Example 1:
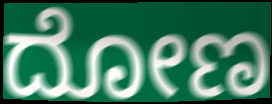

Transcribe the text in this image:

ದೋಣ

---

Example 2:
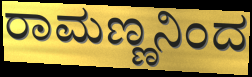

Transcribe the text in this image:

ರಾಮಣ್ಣನಿಂದ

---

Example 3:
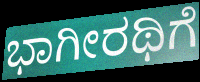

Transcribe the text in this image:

ಭಾಗೀರಥಿಗೆ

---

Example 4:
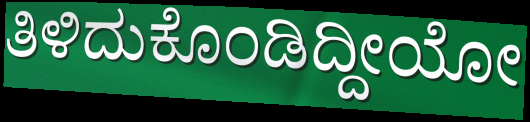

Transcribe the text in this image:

ತಿಳಿದುಕೊಂಡಿದ್ದೀಯೋ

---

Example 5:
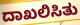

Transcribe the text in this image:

ದಾಖಲಿಸಿತು